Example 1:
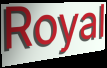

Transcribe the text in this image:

Royal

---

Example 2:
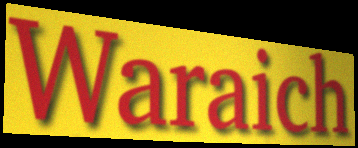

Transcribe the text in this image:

Waraich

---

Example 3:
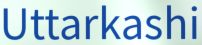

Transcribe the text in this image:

Uttarkashi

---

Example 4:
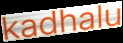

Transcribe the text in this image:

kadhalu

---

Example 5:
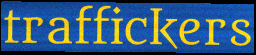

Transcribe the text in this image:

traffickers